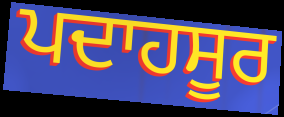
ਪਦਾਹਸੂਰ